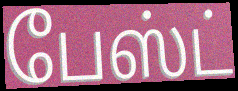
பேஸ்ட்